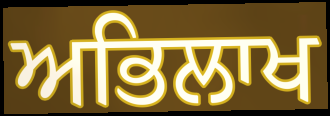
ਅਭਿਲਾਖ